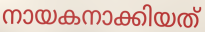
നായകനാക്കിയത്